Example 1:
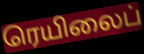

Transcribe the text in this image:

ரெயிலைப்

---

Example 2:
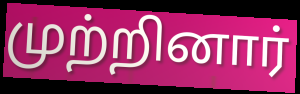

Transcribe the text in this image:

முற்றினார்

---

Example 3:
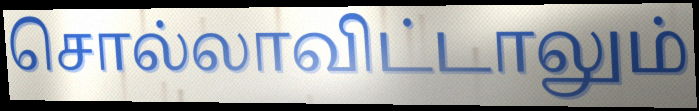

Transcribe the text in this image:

சொல்லாவிட்டாலும்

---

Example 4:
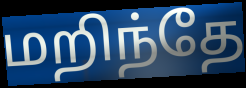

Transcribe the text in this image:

மறிந்தே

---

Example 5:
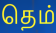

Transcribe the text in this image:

தெம்